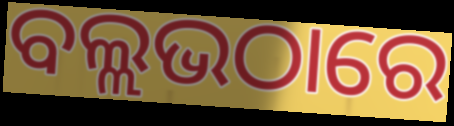
ବଲ୍ଲଭଠାରେ